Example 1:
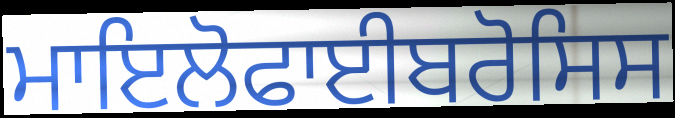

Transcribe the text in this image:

ਮਾਇਲੋਫਾਈਬਰੋਸਿਸ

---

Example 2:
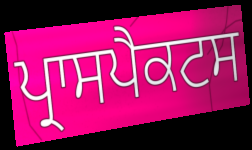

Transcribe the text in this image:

ਪ੍ਰਾਸਪੈਕਟਸ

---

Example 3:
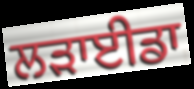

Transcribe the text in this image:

ਲੜਾਈਡਾ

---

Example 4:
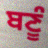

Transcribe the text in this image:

ਬਣੂੰ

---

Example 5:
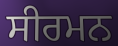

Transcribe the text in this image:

ਸੀਰਮਨ